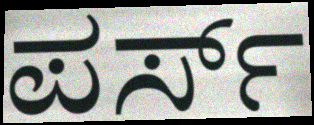
ಪರ್ಸ್